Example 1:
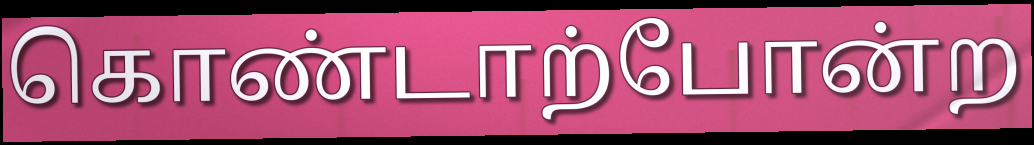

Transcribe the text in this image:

கொண்டாற்போன்ற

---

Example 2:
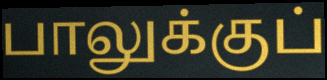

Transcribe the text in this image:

பாலுக்குப்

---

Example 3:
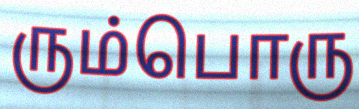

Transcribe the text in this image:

ரும்பொரு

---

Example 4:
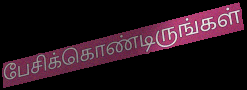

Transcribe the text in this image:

பேசிக்கொண்டிருங்கள்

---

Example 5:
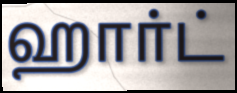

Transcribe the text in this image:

ஹார்ட்